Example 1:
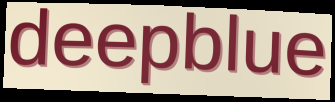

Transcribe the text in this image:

deepblue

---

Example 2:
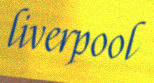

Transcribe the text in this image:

liverpool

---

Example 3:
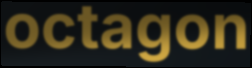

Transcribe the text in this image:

octagon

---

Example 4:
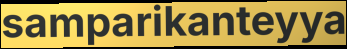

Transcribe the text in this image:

samparikanteyya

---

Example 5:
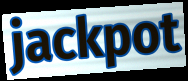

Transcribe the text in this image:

jackpot